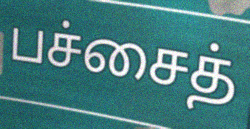
பச்சைத்